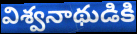
విశ్వనాథుడికి